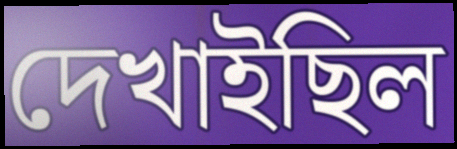
দেখাইছিল